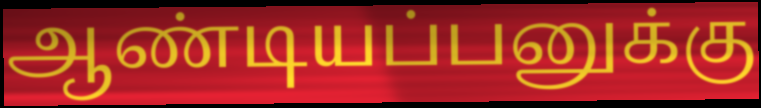
ஆண்டியப்பனுக்கு